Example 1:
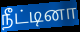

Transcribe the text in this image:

நீட்டினா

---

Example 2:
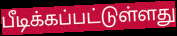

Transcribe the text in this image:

பீடிக்கப்பட்டுள்ளது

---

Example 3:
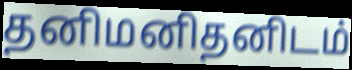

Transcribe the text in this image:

தனிமனிதனிடம்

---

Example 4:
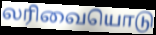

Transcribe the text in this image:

லரிவையொடு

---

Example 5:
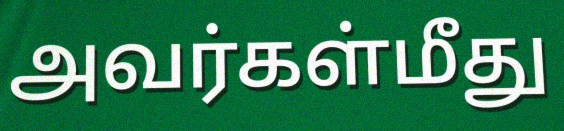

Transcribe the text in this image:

அவர்கள்மீது